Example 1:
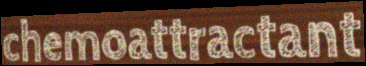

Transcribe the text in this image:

chemoattractant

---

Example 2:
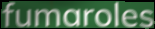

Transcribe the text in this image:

fumaroles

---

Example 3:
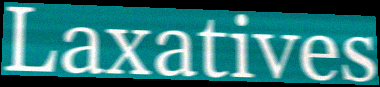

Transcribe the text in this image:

Laxatives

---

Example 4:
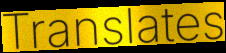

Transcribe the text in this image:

Translates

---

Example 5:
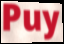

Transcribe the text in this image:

Puy